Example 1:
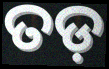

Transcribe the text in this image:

ତଡ଼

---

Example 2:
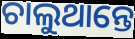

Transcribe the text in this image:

ଚାଲୁଥାନ୍ତେ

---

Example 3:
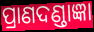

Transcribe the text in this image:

ପ୍ରାଣଦଣ୍ଡାଜ୍ଞା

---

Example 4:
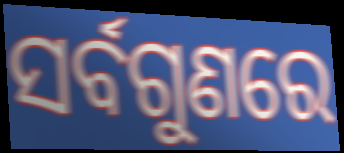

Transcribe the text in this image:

ସର୍ବଗୁଣରେ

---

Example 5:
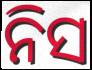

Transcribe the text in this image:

ନିସ